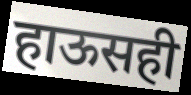
हाऊसही